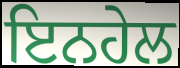
ਇਨਹੇਲ